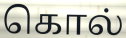
கொல்